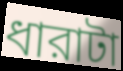
ধারাটা